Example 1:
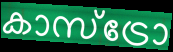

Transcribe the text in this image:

കാസ്ട്രോ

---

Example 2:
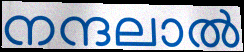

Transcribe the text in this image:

നന്ദലാൽ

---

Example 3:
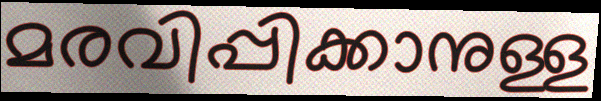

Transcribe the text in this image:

മരവിപ്പിക്കാനുള്ള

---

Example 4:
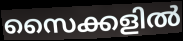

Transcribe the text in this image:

സൈക്കളിൽ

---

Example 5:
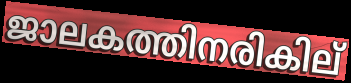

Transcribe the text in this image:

ജാലകത്തിനരികില്